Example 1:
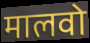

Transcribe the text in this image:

मालवो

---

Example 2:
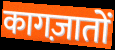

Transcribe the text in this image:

कागज़ातों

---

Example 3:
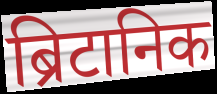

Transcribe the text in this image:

ब्रिटानिक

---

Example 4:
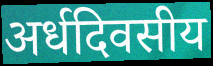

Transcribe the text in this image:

अर्धदिवसीय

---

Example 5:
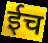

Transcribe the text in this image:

ईच